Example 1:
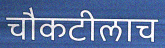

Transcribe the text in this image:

चौकटीलाच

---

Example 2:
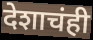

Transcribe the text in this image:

देशाचंही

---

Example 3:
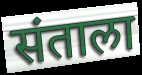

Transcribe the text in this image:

संताला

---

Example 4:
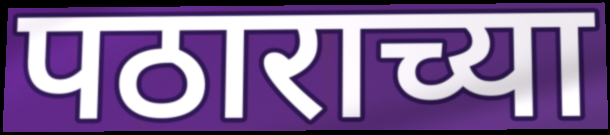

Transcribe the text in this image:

पठाराच्या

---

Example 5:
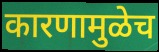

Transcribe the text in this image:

कारणामुळेच